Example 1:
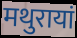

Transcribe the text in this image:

मथुरायां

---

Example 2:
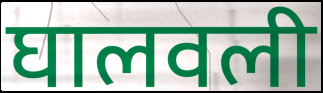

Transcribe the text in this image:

घालवली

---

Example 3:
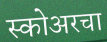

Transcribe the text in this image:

स्कोअरचा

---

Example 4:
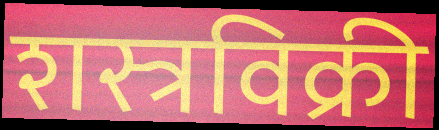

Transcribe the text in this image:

शस्त्रविक्री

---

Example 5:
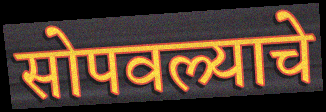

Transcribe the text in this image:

सोपवल्याचे